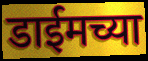
डाईमच्या